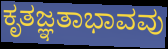
ಕೃತಜ್ಞತಾಭಾವವು